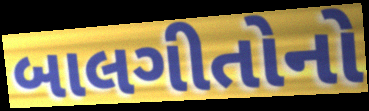
બાલગીતોનો